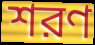
শরণ